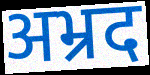
अभ्रद